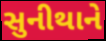
સુનીથાને